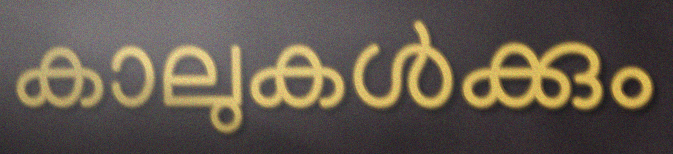
കാലുകൾക്കും